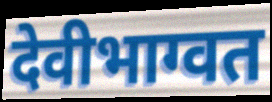
देवीभाग्वत